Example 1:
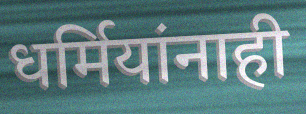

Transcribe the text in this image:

धर्मियांनाही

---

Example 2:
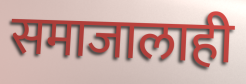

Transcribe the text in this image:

समाजालाही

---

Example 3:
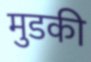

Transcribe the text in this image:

मुडकी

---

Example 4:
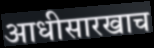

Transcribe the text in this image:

आधीसारखाच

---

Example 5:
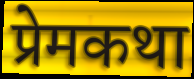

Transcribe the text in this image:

प्रेमकथा